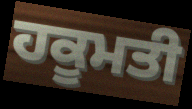
ਹਕੂਮਤੀ